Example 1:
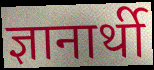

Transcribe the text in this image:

ज्ञानार्थी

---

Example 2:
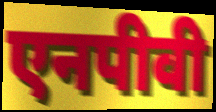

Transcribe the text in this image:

एनपीवी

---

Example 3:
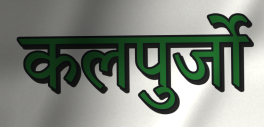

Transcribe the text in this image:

कलपुर्जो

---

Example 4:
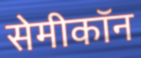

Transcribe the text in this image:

सेमीकॉन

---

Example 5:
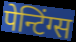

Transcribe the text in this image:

पेन्टिंग्स